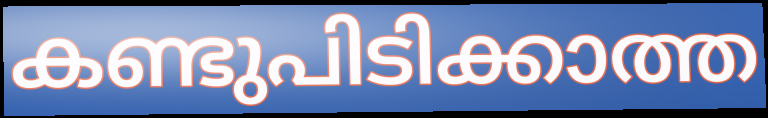
കണ്ടുപിടിക്കാത്ത